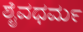
ಶೈವಧರ್ಮ